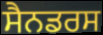
ਸੈਨਡਰਸ